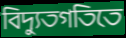
বিদ্যুতগতিতে